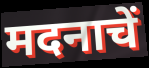
मदनाचें